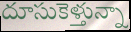
దూసుకెళ్తున్నా